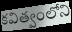
కవిత్వంలోని